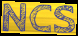
NCS